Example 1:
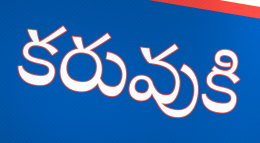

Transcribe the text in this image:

కరువుకి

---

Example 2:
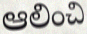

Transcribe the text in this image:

ఆలించి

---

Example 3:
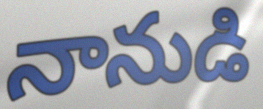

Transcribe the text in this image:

నానుడి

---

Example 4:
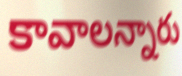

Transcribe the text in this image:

కావాలన్నారు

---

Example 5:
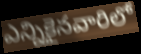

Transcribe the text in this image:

ఎన్నికైనవారిలో